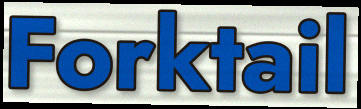
Forktail